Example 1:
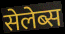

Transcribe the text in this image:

सेलेब्‍स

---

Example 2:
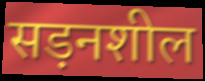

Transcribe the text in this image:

सड़नशील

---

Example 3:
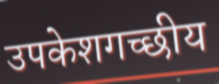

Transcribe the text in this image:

उपकेशगच्छीय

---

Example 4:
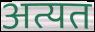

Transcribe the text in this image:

अत्यत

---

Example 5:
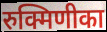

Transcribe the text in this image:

रुक्मिणीका